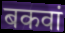
बकवां